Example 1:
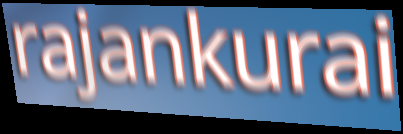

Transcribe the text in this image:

rajankurai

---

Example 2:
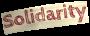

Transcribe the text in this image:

Solidarity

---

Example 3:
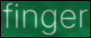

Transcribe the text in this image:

finger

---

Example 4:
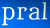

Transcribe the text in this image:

pral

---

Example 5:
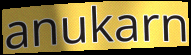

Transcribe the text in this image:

anukarn